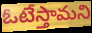
ఓటేస్తామని